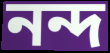
নন্দ